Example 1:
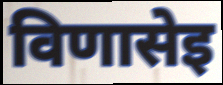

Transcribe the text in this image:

विणासेइ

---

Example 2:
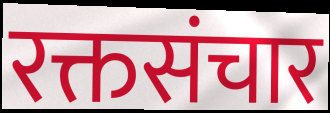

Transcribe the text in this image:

रक्तसंचार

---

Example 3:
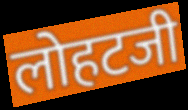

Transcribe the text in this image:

लोहटजी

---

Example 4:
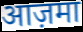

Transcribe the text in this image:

आज़मा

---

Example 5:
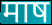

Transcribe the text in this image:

माष